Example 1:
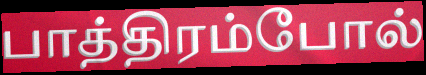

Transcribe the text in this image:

பாத்திரம்போல்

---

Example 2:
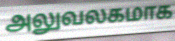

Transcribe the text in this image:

அலுவலகமாக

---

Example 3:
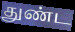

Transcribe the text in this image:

துண்ட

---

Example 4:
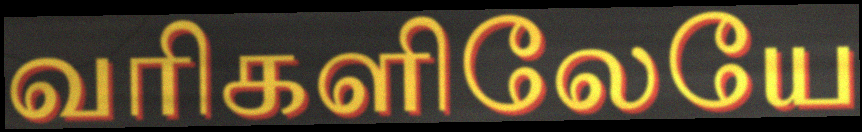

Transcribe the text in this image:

வரிகளிலேயே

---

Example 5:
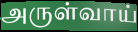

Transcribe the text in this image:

அருள்வாய்